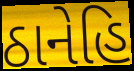
ઠાનેહિ